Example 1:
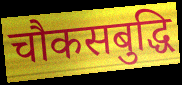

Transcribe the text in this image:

चौकसबुद्धि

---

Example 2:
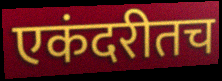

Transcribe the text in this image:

एकंदरीतच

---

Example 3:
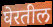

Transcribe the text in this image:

घेरतील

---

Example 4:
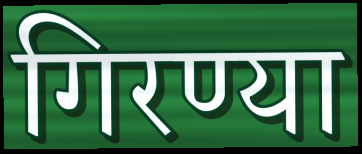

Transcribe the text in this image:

गिरण्या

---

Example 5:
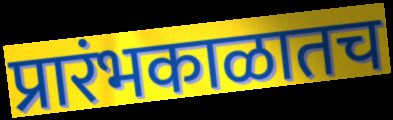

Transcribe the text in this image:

प्रारंभकाळातच